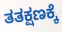
ತತಕ್ಷಣಕ್ಕೆ